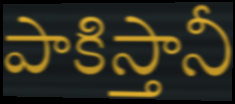
పాకిస్తానీ